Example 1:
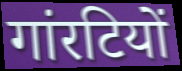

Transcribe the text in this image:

गांरटियों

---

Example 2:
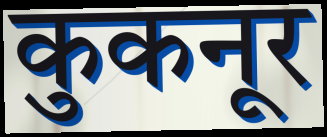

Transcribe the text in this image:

कुकनूर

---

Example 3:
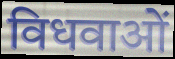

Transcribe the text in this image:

विधवाओं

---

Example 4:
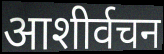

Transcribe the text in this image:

आशीर्वचन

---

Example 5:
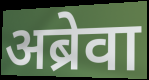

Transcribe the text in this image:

अब्रेवा